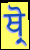
ਥ੍ਰੋ